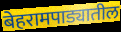
बेहरामपाड्यातील